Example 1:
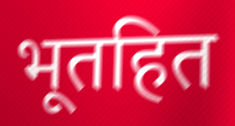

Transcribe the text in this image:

भूतहित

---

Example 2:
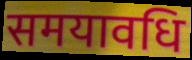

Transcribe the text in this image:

समयावधि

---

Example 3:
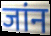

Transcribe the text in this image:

जांन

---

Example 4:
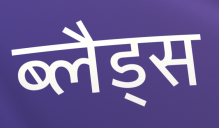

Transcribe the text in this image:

ब्लैड्स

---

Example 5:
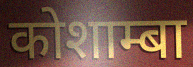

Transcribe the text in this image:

कोशाम्बा